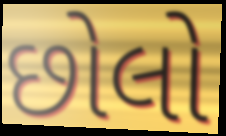
છોલો